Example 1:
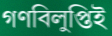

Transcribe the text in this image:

গণবিলুপ্তিই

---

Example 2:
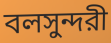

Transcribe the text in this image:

বলসুন্দরী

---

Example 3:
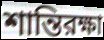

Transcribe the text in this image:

শান্তিরক্ষা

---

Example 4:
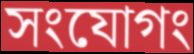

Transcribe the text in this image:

সংযোগং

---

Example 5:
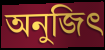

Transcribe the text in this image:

অনুজিৎ